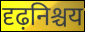
दृढ़निश्चय